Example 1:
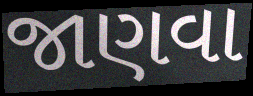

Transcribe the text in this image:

જાણવા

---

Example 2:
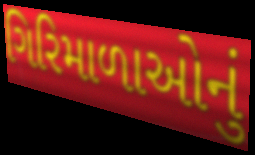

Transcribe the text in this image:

ગિરિમાળાઓનું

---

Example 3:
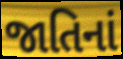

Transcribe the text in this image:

જાતિનાં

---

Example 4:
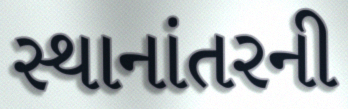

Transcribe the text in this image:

સ્થાનાંતરની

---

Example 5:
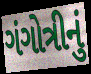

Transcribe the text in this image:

ગંગોત્રીનું